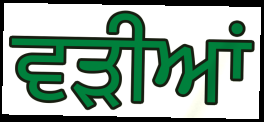
ਵੜੀਆਂ